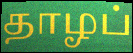
தாழப்